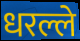
धरल्ले